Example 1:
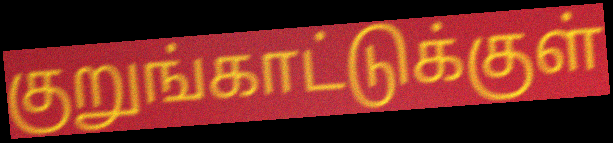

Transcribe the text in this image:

குறுங்காட்டுக்குள்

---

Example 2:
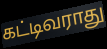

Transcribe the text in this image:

கட்டிவராது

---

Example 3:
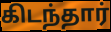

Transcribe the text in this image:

கிடந்தார்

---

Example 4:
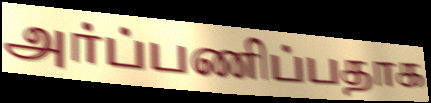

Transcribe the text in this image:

அர்ப்பணிப்பதாக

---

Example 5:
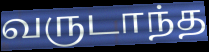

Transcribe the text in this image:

வருடாந்த